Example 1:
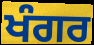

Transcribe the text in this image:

ਖੰਗਰ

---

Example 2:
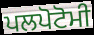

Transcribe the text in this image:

ਪਲਪੋਟੋਮੀ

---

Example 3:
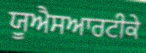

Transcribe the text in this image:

ਯੂਐਸਆਰਟੀਕੇ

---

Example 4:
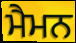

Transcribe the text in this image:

ਮੈਮਨ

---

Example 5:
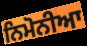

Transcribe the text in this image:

ਨਿਮੋਨੀਆ